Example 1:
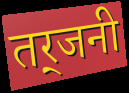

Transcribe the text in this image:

तर्जनी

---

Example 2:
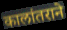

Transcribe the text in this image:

कालांतराने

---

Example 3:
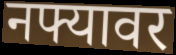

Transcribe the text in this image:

नफ्यावर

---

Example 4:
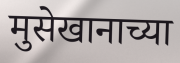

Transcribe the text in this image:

मुसेखानाच्या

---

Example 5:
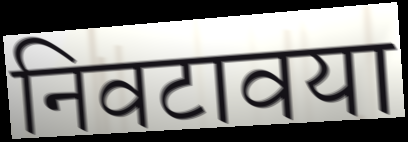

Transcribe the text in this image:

निवटावया